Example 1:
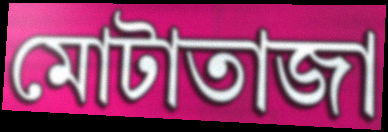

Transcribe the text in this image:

মোটাতাজা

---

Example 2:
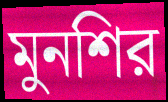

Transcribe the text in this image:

মুনশির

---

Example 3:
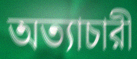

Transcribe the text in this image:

অত্যাচারী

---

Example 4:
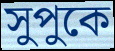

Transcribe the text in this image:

সুপুকে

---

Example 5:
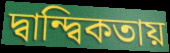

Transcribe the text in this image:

দ্বান্দ্বিকতায়